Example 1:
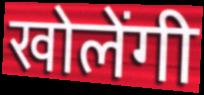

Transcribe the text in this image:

खोलेंगी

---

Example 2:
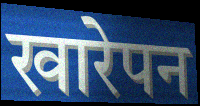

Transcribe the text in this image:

खारेपन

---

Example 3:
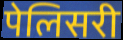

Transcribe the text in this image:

पेलिसरी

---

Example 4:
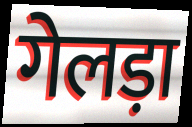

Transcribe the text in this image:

गेलड़ा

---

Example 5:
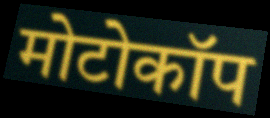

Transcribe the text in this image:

मोटोकॉप